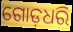
ଗୋଡ଼ଧରି